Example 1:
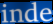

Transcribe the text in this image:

inde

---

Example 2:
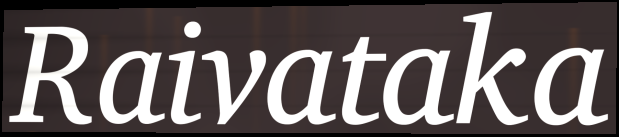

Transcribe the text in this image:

Raivataka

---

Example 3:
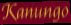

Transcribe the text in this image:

Kanungo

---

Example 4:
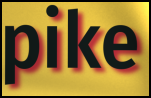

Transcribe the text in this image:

pike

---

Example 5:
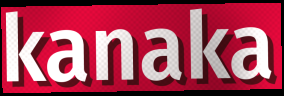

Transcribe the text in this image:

kanaka